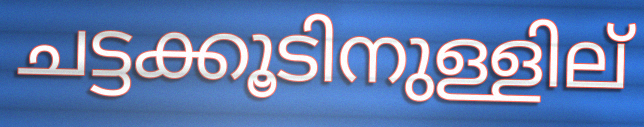
ചട്ടക്കൂടിനുള്ളില്